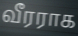
வீரராக